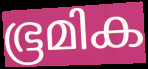
ഭൂമിക